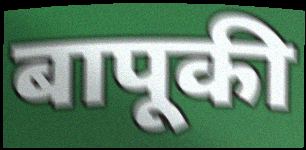
बापूकी